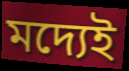
মদ্যেই